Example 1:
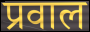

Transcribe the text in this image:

प्रवाल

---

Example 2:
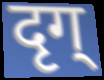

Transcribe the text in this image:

दृग्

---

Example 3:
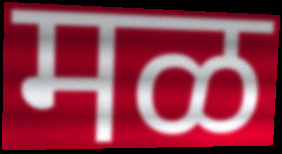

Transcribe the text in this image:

मळ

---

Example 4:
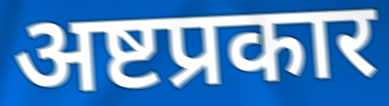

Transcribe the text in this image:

अष्टप्रकार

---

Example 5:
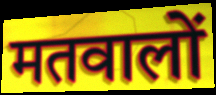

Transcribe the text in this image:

मतवालों